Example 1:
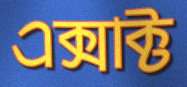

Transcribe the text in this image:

এক্সাক্ট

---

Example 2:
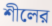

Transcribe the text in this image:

শীলের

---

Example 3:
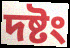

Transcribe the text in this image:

দষ্টং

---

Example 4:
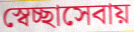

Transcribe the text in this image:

স্বেচ্ছাসেবায়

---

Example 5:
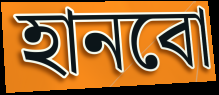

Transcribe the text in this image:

হানবো